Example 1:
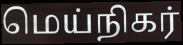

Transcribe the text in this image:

மெய்நிகர்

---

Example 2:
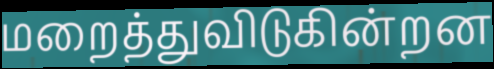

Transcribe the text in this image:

மறைத்துவிடுகின்றன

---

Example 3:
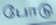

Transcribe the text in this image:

போடு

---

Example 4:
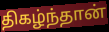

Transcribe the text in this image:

திகழ்ந்தான்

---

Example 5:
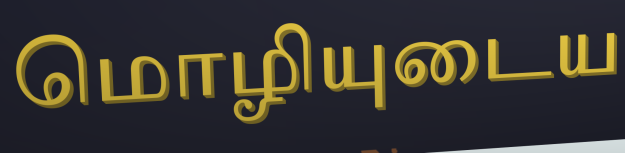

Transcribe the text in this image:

மொழியுடைய